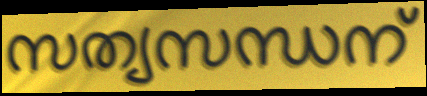
സത്യസന്ധന്